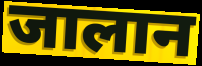
जालान